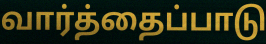
வார்த்தைப்பாடு